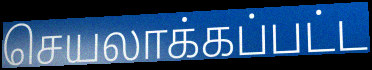
செயலாக்கப்பட்ட